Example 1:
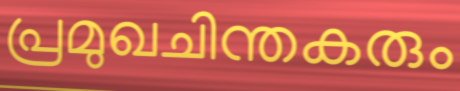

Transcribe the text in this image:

പ്രമുഖചിന്തകരും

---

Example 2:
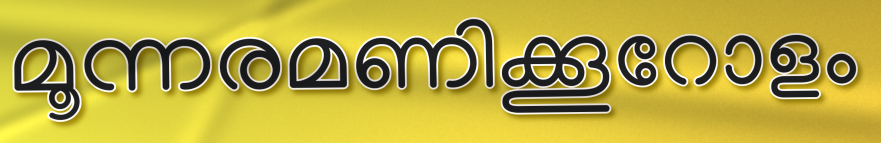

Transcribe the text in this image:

മൂന്നരമണിക്കൂറോളം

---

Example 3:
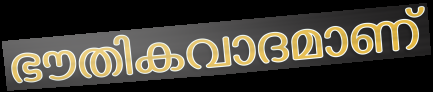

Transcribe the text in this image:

ഭൗതികവാദമാണ്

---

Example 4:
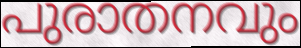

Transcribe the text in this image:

പുരാതനവും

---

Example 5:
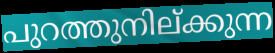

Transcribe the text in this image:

പുറത്തുനില്ക്കുന്ന